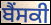
ਬੈਂਸਕੀ